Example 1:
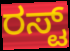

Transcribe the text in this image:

ರಸ್ಟ್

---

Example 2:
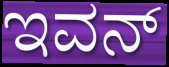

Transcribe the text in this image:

ಇವನ್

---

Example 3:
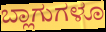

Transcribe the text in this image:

ಬ್ಲಾಗುಗಳೂ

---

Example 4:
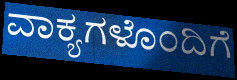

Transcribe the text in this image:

ವಾಕ್ಯಗಳೊಂದಿಗೆ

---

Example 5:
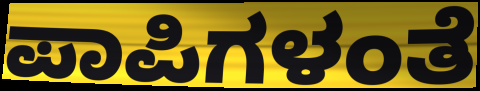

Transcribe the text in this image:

ಪಾಪಿಗಳಂತೆ